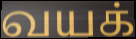
வயக்